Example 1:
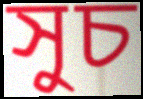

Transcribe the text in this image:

সুচ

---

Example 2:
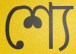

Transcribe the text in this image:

শ্যে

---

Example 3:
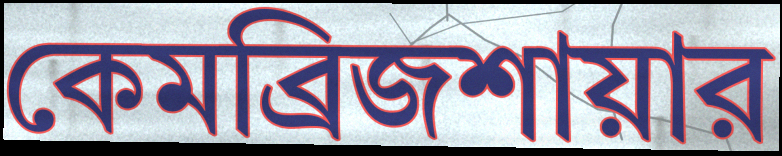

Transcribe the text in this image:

কেমব্রিজশায়ার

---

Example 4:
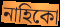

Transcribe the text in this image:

নাহিকো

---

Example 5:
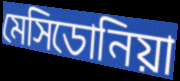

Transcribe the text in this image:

মেসিডোনিয়া